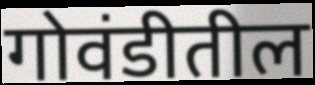
गोवंडीतील